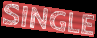
SINGLE